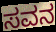
ಸವನ